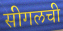
सीगलची